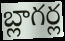
బ్లాగర్ల